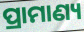
ପ୍ରାମାଣ୍ୟ